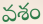
వశం